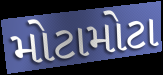
મોટામોટા